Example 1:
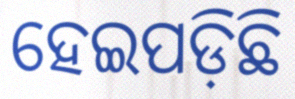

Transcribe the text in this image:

ହେଇପଡ଼ିଛି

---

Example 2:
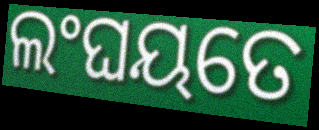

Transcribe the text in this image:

ଲଂଘୟତେ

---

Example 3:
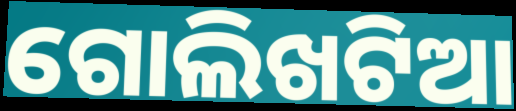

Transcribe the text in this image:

ଗୋଲିଖଟିଆ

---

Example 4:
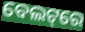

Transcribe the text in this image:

ବେଲଟ୍‌ରେ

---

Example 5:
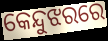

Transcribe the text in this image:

କେନ୍ଦୁଝରରେ